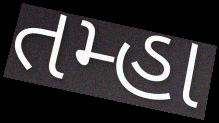
તમ્હા